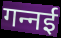
गन्नई